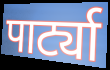
पार्ट्या